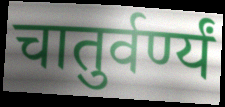
चातुर्वर्ण्यं